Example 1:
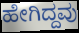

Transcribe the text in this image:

ಹೇಗಿದ್ದವು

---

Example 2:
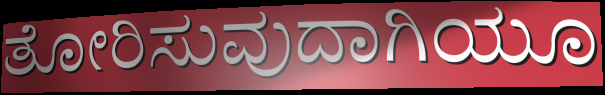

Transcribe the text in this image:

ತೋರಿಸುವುದಾಗಿಯೂ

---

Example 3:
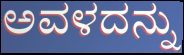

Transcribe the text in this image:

ಅವಳದನ್ನು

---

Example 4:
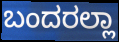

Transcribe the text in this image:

ಬಂದರಲ್ಲಾ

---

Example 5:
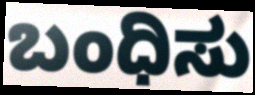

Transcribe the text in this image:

ಬಂಧಿಸು